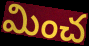
మించ